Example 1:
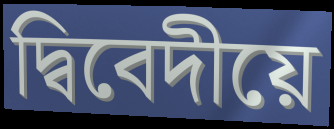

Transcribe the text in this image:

দ্বিবেদীয়ে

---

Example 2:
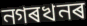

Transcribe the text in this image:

নগৰখনৰ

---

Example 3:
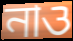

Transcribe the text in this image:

নাও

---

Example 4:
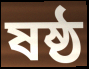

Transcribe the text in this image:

ষষ্ঠ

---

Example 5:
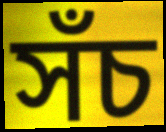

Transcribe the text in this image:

সঁচ